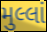
મુલ્લાં